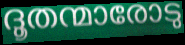
ദൂതന്മാരോടു